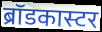
ब्रॉडकास्टर